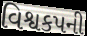
વિશ્વકપની